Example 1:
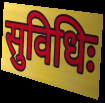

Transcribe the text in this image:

सुविधिः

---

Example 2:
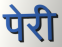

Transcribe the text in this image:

पेरी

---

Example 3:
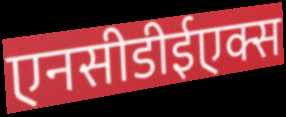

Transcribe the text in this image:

एनसीडीईएक्स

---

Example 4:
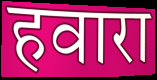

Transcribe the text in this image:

हवारा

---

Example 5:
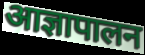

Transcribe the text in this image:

आज्ञापालन